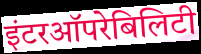
इंटरऑपरेबिलिटी